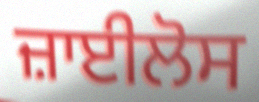
ਜ਼ਾਈਲੋਸ